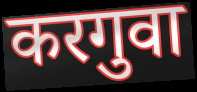
करगुवा